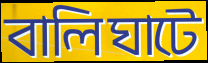
বালিঘাটে